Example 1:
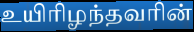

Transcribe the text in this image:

உயிரிழந்தவரின்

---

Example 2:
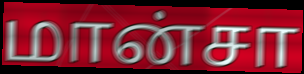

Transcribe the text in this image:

மான்சா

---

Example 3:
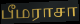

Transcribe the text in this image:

பீமராசா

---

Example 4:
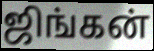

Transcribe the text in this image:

ஜிங்கன்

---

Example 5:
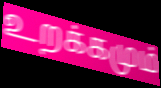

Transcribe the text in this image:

உறக்கமும்